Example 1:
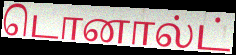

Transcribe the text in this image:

டொனால்ட்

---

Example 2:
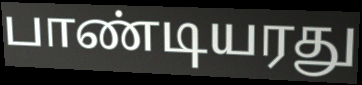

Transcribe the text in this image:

பாண்டியரது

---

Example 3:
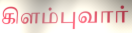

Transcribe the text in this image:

கிளம்புவார்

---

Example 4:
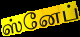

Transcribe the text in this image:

ஸ்னேப்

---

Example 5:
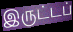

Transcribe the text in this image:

இருட்டப்